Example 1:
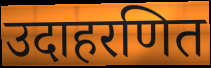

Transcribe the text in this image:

उदाहरणित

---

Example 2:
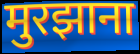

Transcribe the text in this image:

मुरझाना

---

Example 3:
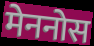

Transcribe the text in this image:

मेननोस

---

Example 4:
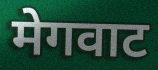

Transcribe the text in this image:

मेगवाट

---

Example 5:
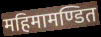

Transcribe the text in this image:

महिमामण्डित